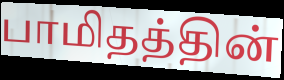
பாமிதத்தின்